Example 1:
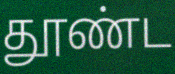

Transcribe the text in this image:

தூண்ட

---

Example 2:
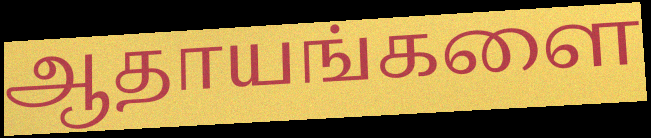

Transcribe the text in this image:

ஆதாயங்களை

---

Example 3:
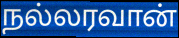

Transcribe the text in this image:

நல்லரவான்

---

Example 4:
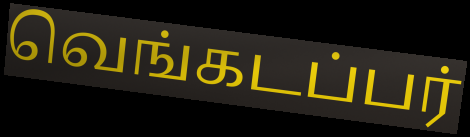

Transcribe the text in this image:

வெங்கடப்பர்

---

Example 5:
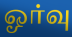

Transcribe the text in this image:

ஓர்வு